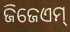
ଜିଜେଏମ୍